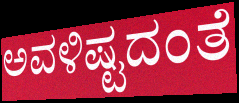
ಅವಳಿಷ್ಟದಂತೆ